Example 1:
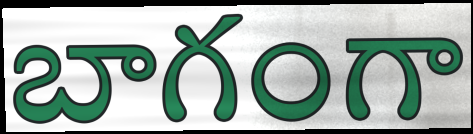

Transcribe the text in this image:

బాగంగా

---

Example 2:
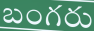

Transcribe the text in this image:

బంగరు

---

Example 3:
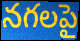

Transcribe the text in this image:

నగలపై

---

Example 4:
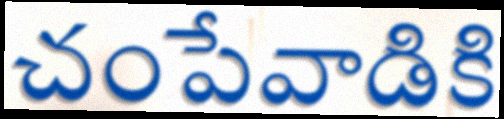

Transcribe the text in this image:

చంపేవాడికి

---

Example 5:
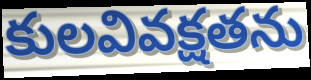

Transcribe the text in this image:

కులవివక్షతను